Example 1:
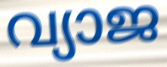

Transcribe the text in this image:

വ്യാജ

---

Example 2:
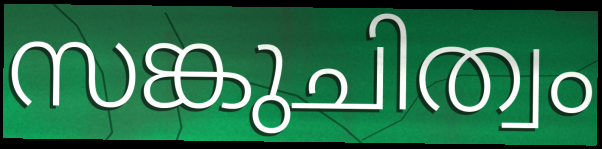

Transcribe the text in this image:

സങ്കുചിത്വം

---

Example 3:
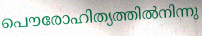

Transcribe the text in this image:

പൌരോഹിത്യത്തിൽനിന്നു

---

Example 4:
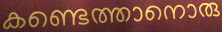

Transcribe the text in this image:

കണ്ടെത്താനൊരു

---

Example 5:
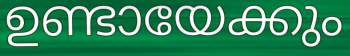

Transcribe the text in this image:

ഉണ്ടായേക്കും